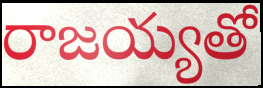
రాజయ్యతో